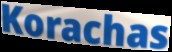
Korachas